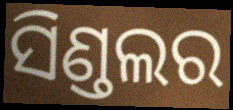
ସିଣ୍ଡଲର